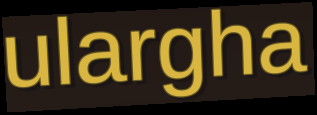
ulargha